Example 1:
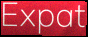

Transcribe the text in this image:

Expat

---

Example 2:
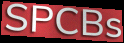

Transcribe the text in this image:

SPCBs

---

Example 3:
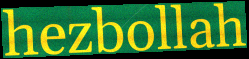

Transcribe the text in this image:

hezbollah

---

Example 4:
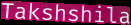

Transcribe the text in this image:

Takshshila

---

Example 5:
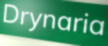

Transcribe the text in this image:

Drynaria